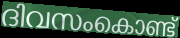
ദിവസംകൊണ്ട്